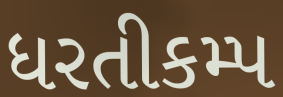
ધરતીકમ્પ